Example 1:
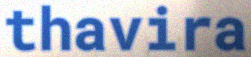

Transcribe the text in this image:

thavira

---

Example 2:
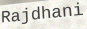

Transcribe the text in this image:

Rajdhani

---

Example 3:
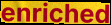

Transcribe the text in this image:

enriched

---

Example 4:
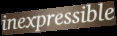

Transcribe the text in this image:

inexpressible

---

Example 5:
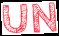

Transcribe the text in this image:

UN